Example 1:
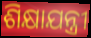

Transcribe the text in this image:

ଶିକ୍ଷାଯନ୍ତ୍ରୀ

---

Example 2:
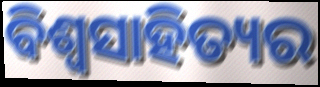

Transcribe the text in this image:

ବିଶ୍ଵସାହିତ୍ୟର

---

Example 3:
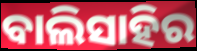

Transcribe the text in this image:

ବାଲିସାହିର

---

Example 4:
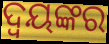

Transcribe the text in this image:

ଦ୍ବୟଙ୍କର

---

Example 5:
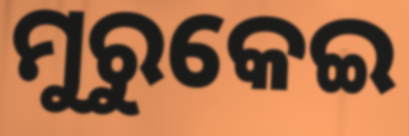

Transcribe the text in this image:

ମୁରୁକେଇ